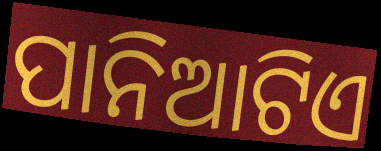
ପାନିଆଟିଏ